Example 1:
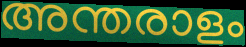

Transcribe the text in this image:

അന്തരാളം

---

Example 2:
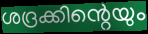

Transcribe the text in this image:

ശദ്രക്കിന്റെയും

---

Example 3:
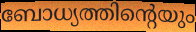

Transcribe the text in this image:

ബോധ്യത്തിന്റെയും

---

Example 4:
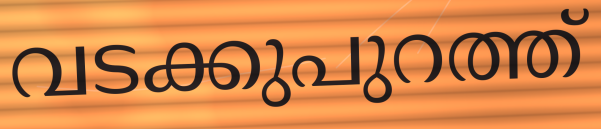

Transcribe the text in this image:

വടക്കുപുറത്ത്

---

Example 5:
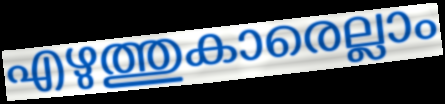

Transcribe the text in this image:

എഴുത്തുകാരെല്ലാം